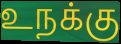
உநக்கு